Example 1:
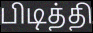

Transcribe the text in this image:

பிடித்தி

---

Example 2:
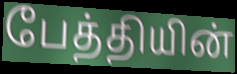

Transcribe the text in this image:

பேத்தியின்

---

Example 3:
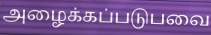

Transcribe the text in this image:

அழைக்கப்படுபவை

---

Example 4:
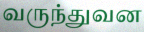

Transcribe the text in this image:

வருந்துவன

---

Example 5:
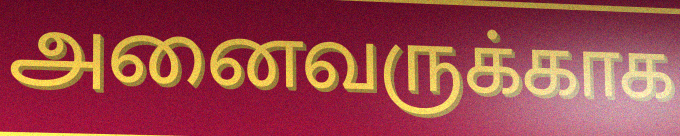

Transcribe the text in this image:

அனைவருக்காக